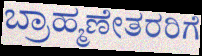
ಬ್ರಾಹ್ಮಣೇತರರಿಗೆ